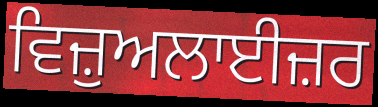
ਵਿਜ਼ੁਅਲਾਈਜ਼ਰ